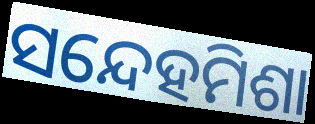
ସନ୍ଦେହମିଶା